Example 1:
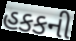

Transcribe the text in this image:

હકકની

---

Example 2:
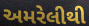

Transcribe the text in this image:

અમરેલીથી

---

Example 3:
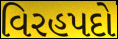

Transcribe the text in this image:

વિરહપદો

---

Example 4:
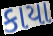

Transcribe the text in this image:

કાયા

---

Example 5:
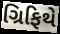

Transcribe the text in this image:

ગ્રિફિથે